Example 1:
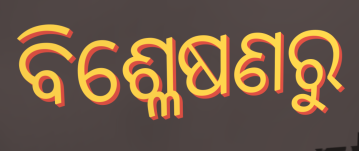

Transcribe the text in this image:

ବିଶ୍ଳେଷଣରୁ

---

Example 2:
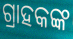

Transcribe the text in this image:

ଗ୍ରାହକଙ୍କ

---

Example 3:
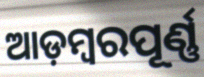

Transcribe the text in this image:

ଆଡ଼ମ୍ବରପୂର୍ଣ୍ଣ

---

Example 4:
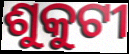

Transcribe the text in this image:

ଶୁକୁଟୀ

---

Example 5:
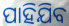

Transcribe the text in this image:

ପାହିଯିବ